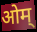
ओम्